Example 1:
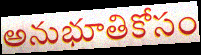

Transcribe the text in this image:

అనుభూతికోసం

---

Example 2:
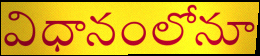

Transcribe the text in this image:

విధానంలోనూ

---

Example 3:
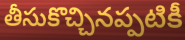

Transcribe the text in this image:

తీసుకొచ్చినప్పటికీ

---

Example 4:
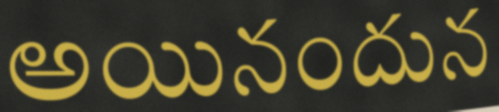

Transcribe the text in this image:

అయినందున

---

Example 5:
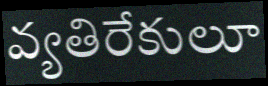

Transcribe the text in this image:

వ్యతిరేకులూ